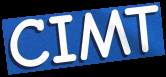
CIMT